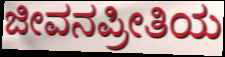
ಜೀವನಪ್ರೀತಿಯ